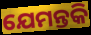
ଯେମନ୍ତକି